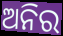
ଅନିର